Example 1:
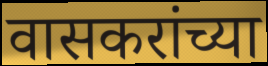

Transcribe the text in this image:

वासकरांच्या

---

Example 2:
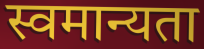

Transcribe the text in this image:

स्वमान्यता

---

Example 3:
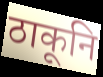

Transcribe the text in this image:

ठाकूनि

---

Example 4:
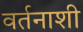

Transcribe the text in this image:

वर्तनाशी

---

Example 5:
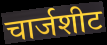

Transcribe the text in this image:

चार्जशीट